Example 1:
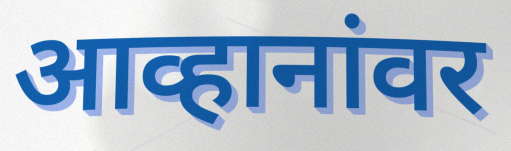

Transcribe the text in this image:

आव्हानांवर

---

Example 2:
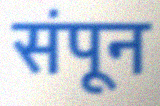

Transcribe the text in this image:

संपून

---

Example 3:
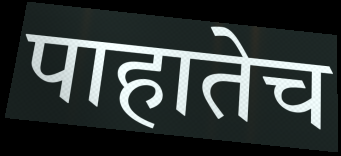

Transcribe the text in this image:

पाहातेच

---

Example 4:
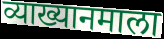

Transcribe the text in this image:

व्याख्यानमाला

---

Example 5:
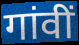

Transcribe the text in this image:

गांवीं